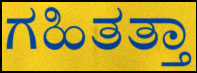
ಗಹಿತತ್ತಾ